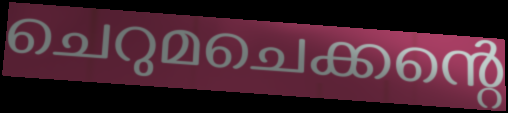
ചെറുമചെക്കന്റെ